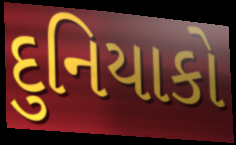
દુનિયાકો